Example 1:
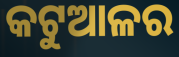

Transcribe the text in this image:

କଟୁଆଳର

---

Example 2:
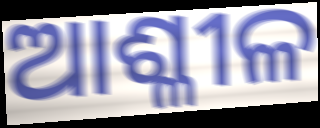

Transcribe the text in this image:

ଆଶ୍ଳୀଳ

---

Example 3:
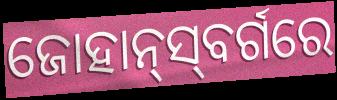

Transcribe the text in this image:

ଜୋହାନ୍‌ସ୍‌ବର୍ଗରେ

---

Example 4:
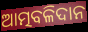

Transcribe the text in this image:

ଆତ୍ମବଳିଦାନ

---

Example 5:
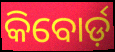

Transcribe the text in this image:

କିବୋର୍ଡ଼